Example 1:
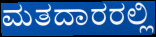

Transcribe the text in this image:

ಮತದಾರರಲ್ಲಿ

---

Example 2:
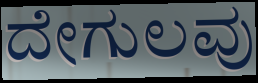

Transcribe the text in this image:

ದೇಗುಲವು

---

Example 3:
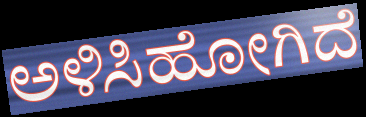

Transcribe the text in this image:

ಅಳಿಸಿಹೋಗಿದೆ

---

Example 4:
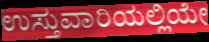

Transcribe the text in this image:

ಉಸ್ತುವಾರಿಯಲ್ಲಿಯೇ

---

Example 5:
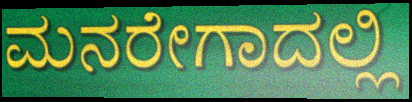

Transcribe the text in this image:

ಮನರೇಗಾದಲ್ಲಿ